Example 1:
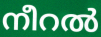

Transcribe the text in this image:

നീറൽ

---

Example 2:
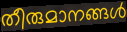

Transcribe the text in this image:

തീരുമാനങ്ങൾ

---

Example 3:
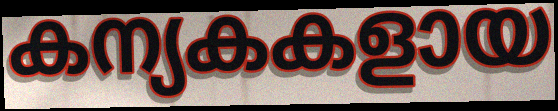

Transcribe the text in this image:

കന്യകകളായ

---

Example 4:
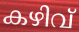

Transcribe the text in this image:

കഴിവ്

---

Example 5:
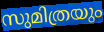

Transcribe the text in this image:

സുമിത്രയും